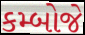
કમ્બોજે